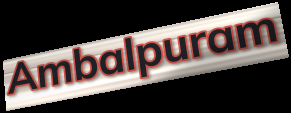
Ambalpuram